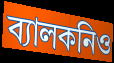
ব্যালকনিও